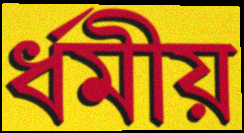
ৰ্ধমীয়